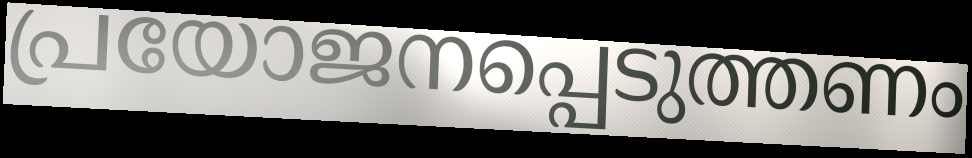
പ്രയോജനപ്പെടുത്തണം